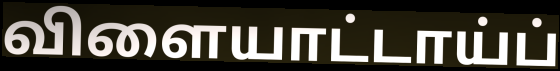
விளையாட்டாய்ப்